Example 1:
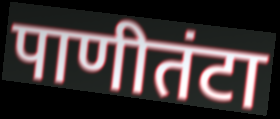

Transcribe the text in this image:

पाणीतंटा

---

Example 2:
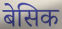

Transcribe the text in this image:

बेसिक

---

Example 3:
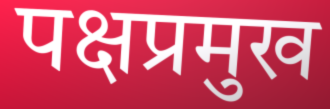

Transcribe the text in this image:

पक्षप्रमुख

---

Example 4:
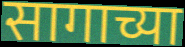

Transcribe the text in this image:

सागाच्या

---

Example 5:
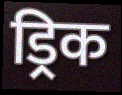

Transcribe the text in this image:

ड्रिक